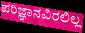
ಪರಿಜ್ಞಾನವಿರಲಿಲ್ಲ